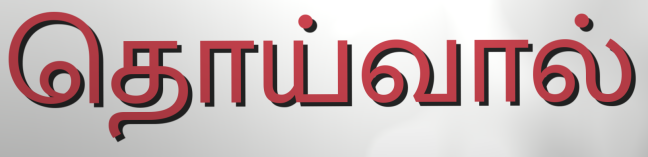
தொய்வால்